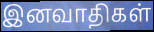
இனவாதிகள்